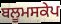
ਬਲੂਮਸਕੇਪ